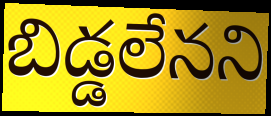
బిడ్డలేనని